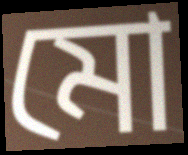
মো